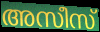
അസീസ്